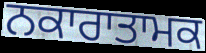
ਨਕਾਰਾਤਾਮਕ